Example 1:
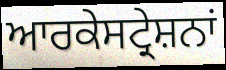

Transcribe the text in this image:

ਆਰਕੇਸਟ੍ਰੇਸ਼ਨਾਂ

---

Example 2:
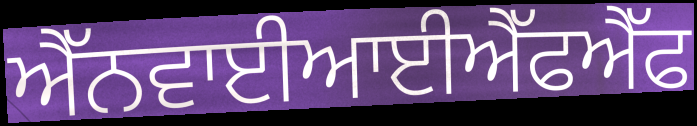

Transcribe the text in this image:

ਐੱਨਵਾਈਆਈਐੱਫਐੱਫ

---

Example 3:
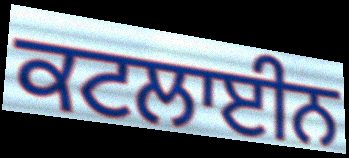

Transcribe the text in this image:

ਕਟਲਾਈਨ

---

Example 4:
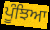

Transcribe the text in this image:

ਪੂੰਝਿਆ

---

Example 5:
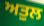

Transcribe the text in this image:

ਅਤੁਲ